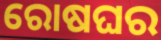
ରୋଷଘର